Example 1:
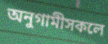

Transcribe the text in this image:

অনুগামীসকলে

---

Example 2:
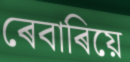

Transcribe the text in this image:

ৰেবাৰিয়ে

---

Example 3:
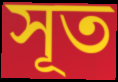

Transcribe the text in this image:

সূত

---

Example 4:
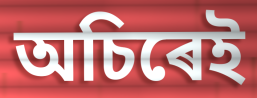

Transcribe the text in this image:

অচিৰেই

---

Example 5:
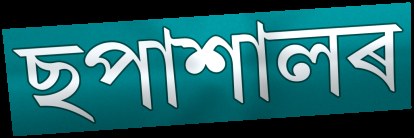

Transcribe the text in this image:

ছপাশালৰ